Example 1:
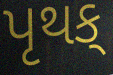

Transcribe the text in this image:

પૃથક્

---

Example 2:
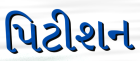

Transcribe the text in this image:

પિટીશન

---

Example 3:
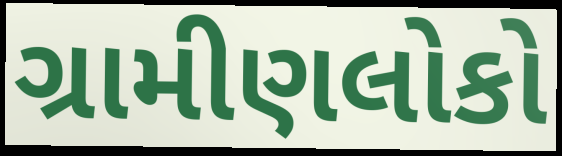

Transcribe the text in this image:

ગ્રામીણલોકો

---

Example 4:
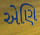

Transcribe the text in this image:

એણિ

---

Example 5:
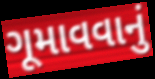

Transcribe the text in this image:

ગૂમાવવાનું